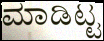
ಮಾಡಿಟ್ಟ